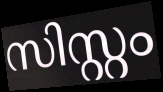
സിസ്റ്റം